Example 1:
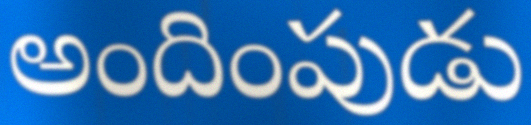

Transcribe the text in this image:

అందింపుడు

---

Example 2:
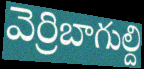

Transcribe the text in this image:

వెర్రిబాగుల్ది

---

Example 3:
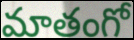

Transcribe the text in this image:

మాతంగో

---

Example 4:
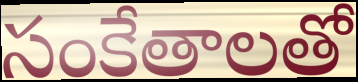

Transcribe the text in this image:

సంకేతాలతో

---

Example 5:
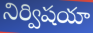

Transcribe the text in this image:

నిర్విషయా